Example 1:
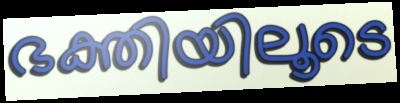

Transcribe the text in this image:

ഭക്തിയിലൂടെ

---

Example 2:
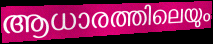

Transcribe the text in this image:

ആധാരത്തിലെയും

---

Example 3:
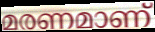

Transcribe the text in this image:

മരണമാണ്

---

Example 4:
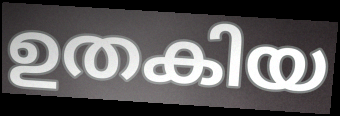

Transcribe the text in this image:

ഉതകിയ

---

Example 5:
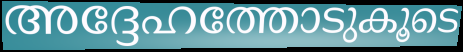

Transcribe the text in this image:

അദ്ദേഹത്തോടുകൂടെ